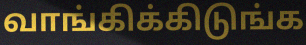
வாங்கிக்கிடுங்க